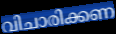
വിചാരിക്കണ